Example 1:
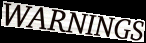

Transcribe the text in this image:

WARNINGS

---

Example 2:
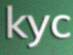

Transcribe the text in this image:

kyc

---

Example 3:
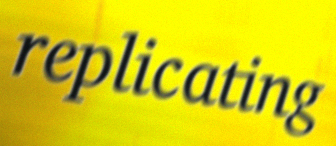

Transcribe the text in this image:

replicating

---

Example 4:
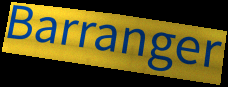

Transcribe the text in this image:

Barranger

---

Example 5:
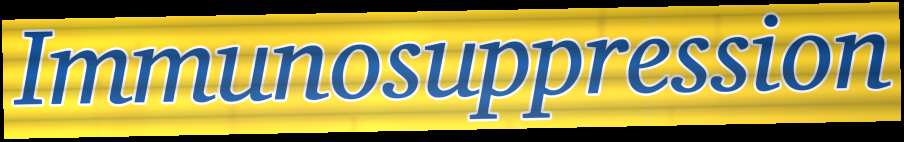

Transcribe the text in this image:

Immunosuppression